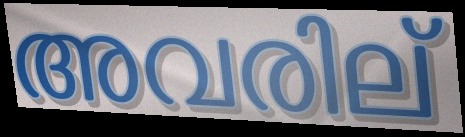
അവരില്